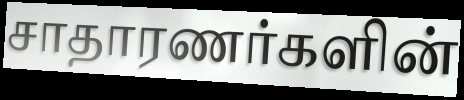
சாதாரணர்களின்